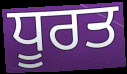
ਧੂਰਤ